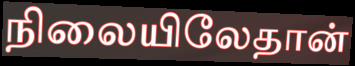
நிலையிலேதான்